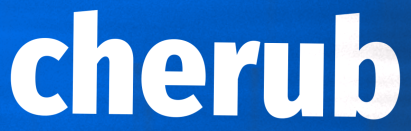
cherub